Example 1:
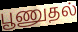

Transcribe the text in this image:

பூணுதல்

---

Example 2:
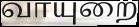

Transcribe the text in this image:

வாயுறை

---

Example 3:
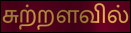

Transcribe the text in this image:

சுற்றளவில்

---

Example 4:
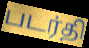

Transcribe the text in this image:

படர்தி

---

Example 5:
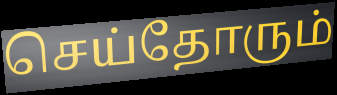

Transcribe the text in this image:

செய்தோரும்